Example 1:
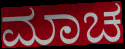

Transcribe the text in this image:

ಮಾಚ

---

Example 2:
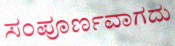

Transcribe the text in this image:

ಸಂಪೂರ್ಣವಾಗದು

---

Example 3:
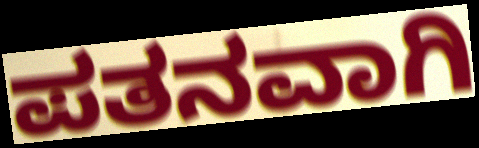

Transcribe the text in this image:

ಪತನವಾಗಿ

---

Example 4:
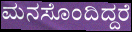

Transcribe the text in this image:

ಮನಸೊಂದಿದ್ದರೆ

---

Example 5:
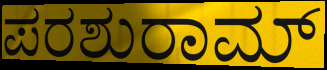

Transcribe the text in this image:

ಪರಶುರಾಮ್